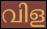
വിള